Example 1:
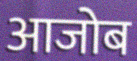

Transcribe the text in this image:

आजोब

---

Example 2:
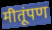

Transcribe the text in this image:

मीतूंपण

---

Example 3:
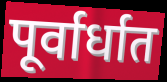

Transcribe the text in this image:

पूर्वार्धात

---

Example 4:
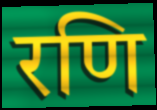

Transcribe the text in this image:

रणि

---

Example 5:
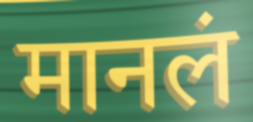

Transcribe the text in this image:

मानलं